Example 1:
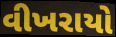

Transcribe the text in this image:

વીખરાયો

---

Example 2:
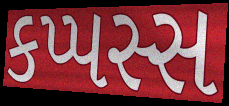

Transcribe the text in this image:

કપ્પસ્સ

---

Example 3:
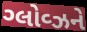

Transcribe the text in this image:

ગ્લોવ્ઝને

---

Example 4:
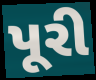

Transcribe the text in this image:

પૂરી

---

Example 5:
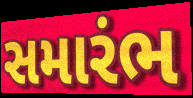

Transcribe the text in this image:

સમારંભ